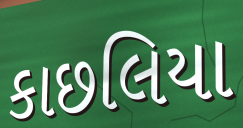
કાછલિયા